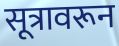
सूत्रावरून